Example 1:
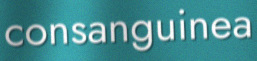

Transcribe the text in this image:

consanguinea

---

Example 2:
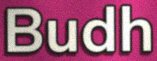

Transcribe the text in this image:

Budh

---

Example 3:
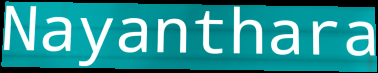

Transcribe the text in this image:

Nayanthara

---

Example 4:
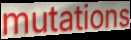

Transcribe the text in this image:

mutations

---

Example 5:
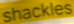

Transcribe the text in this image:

shackles